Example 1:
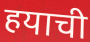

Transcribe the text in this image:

हयाची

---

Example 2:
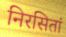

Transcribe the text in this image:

निरसितां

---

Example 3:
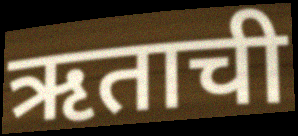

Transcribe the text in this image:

ऋताची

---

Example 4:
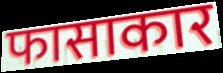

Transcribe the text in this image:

फासाकार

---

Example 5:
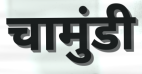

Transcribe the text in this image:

चामुंडी